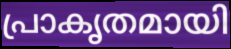
പ്രാകൃതമായി